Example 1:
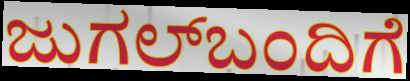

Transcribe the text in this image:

ಜುಗಲ್‌ಬಂದಿಗೆ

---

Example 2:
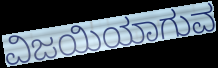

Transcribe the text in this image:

ವಿಜಯಿಯಾಗುವ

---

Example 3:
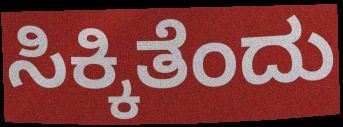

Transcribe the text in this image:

ಸಿಕ್ಕಿತೆಂದು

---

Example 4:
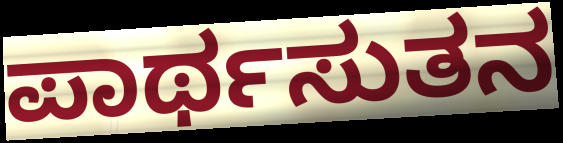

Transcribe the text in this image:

ಪಾರ್ಥಸುತನ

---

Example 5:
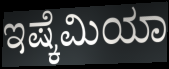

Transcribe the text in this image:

ಇಷ್ಕೆಮಿಯಾ